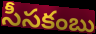
సీసకంబు